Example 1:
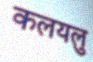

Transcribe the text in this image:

कलयलु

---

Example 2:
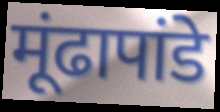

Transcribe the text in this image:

मूंढापांडे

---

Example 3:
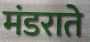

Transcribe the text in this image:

मंडराते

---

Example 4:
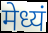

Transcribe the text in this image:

मेध्यं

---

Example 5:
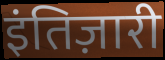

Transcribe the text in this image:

इंतिज़ारी